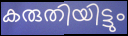
കരുതിയിട്ടും